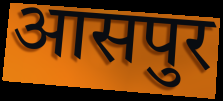
आसपुर